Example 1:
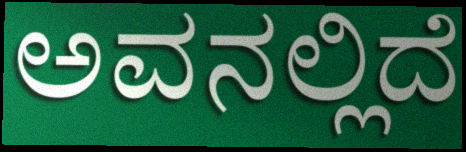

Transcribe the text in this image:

ಅವನಲ್ಲಿದೆ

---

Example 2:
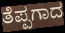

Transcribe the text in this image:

ತೆಪ್ಪಗಾದ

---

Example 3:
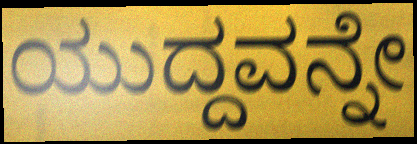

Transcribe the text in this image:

ಯುದ್ದವನ್ನೇ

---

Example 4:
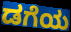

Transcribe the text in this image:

ಡಗೆಯ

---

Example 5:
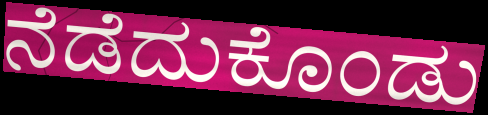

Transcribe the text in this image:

ನೆಡೆದುಕೊಂಡು